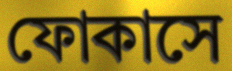
ফোকাসে